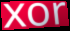
xor